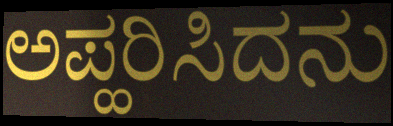
ಅಪ್ಹರಿಸಿದನು